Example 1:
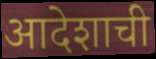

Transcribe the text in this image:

आदेशाची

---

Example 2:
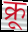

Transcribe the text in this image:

क्रू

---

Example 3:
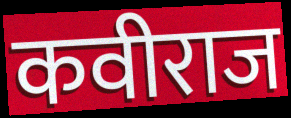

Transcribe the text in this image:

कवीराज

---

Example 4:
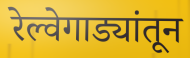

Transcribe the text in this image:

रेल्वेगाड्यांतून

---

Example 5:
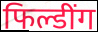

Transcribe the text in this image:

फिल्डींग